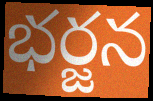
భర్జన